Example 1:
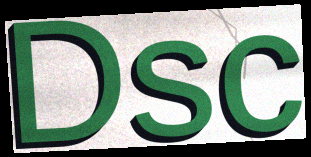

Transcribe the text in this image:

Dsc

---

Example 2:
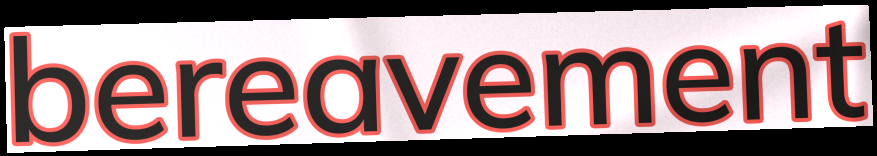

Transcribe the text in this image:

bereavement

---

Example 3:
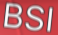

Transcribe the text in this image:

BSI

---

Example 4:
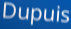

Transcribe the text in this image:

Dupuis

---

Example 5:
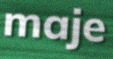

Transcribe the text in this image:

maje